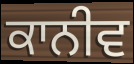
ਕਾਨੀਵ